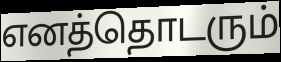
எனத்தொடரும்